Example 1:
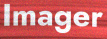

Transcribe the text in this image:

Imager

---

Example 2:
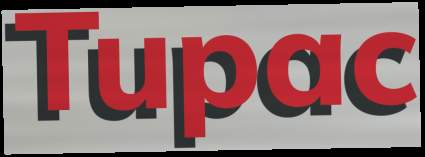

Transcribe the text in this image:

Tupac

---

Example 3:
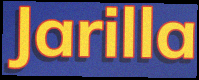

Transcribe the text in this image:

Jarilla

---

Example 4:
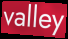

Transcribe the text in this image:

valley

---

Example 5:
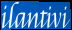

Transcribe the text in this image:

ilantivi